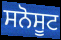
ਸਨੋਸੂਟ